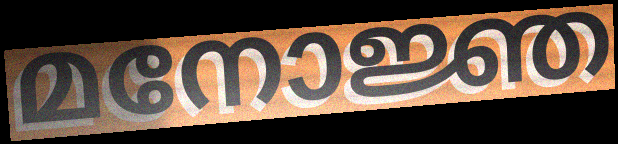
മനോജ്ഞ